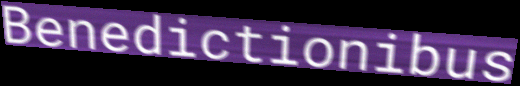
Benedictionibus